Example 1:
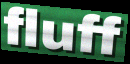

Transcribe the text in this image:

fluff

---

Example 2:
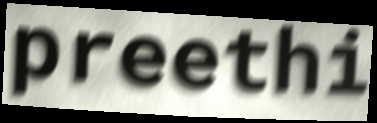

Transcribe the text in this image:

preethi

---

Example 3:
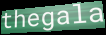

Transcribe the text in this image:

thegala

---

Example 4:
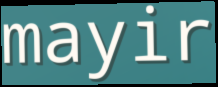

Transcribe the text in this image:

mayir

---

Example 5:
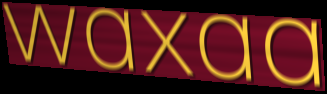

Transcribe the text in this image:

waxaa